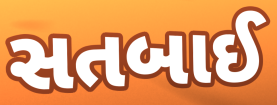
સતબાઈ